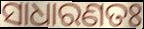
ସାଧାରଣତଃ